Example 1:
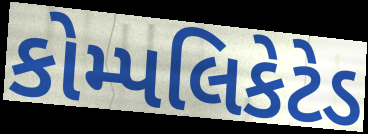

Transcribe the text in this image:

કોમ્પલિકેટેડ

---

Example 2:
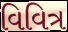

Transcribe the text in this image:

વિવિત્ર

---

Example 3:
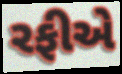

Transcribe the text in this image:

રફીએ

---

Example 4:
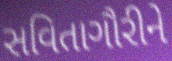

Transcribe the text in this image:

સવિતાગૌરીને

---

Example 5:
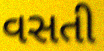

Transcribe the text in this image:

વસતી